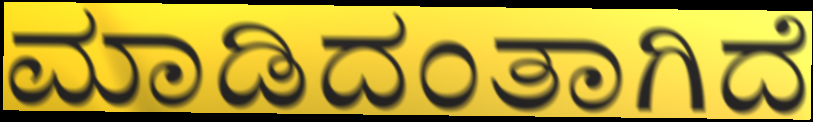
ಮಾಡಿದಂತಾಗಿದೆ